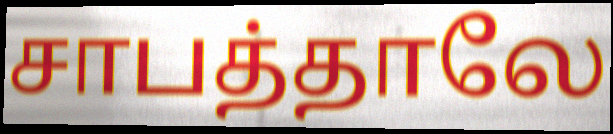
சாபத்தாலே